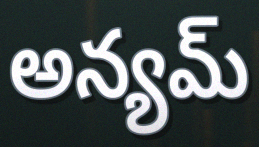
అన్యమ్